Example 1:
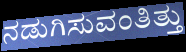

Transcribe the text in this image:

ನಡುಗಿಸುವಂತಿತ್ತು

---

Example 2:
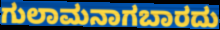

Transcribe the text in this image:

ಗುಲಾಮನಾಗಬಾರದು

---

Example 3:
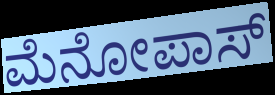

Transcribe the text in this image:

ಮೆನೋಪಾಸ್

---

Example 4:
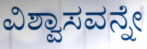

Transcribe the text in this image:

ವಿಶ್ವಾಸವನ್ನೇ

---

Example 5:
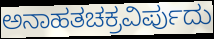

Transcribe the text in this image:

ಅನಾಹತಚಕ್ರವಿರ್ಪುದು